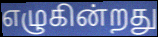
எழுகின்றது